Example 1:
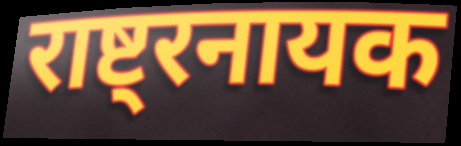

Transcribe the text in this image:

राष्ट्रनायक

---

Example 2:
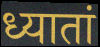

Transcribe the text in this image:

ध्यातां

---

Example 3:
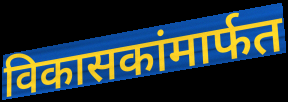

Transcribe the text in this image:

विकासकांमार्फत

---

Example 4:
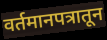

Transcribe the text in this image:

वर्तमानपत्रातून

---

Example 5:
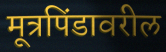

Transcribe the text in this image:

मूत्रपिंडावरील